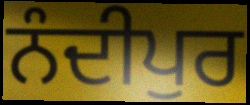
ਨੰਦੀਪੁਰ